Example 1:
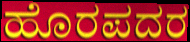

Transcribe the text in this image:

ಹೊರಪದರ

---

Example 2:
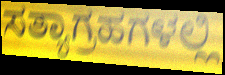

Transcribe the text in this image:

ಸತ್ಯಾಗ್ರಹಗಳಲ್ಲಿ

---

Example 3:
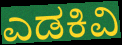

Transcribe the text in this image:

ಎಡಕಿವಿ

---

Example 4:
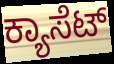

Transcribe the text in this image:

ಕ್ಯಾಸೆಟ್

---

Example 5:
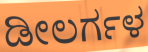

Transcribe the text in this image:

ಡೀಲರ್ಗಳ